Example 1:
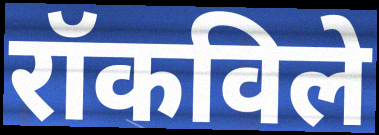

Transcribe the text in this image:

रॉकविले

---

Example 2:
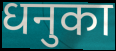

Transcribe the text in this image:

धनुका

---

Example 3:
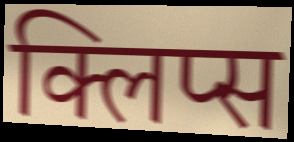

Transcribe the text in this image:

क्लिप्स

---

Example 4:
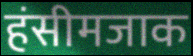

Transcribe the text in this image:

हंसीमजाक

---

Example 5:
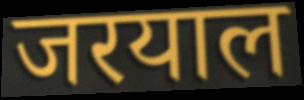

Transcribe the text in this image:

जरयाल